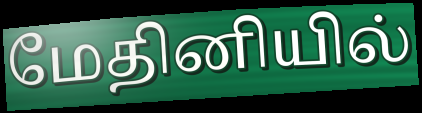
மேதினியில்